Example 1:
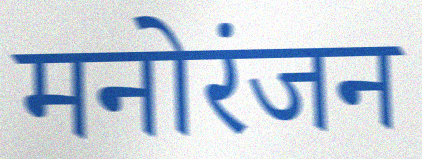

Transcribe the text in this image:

मनोरंजन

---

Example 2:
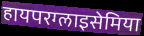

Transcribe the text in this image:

हायपरग्लाइसेमिया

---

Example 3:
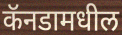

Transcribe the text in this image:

कॅनडामधील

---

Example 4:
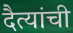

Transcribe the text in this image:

दैत्यांची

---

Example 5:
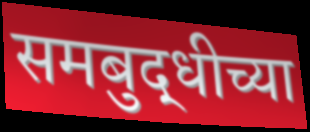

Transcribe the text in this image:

समबुद्धीच्या